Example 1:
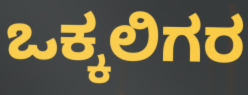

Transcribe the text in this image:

ಒಕ್ಕಲಿಗರ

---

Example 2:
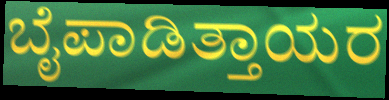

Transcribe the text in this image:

ಬೈಪಾಡಿತ್ತಾಯರ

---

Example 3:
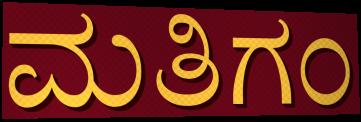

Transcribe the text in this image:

ಮತಿಗಂ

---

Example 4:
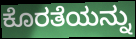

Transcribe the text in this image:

ಕೊರತೆಯನ್ನು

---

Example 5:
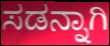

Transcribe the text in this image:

ಸಡನ್ನಾಗಿ